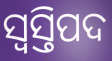
ସ୍ବସ୍ତିପଦ